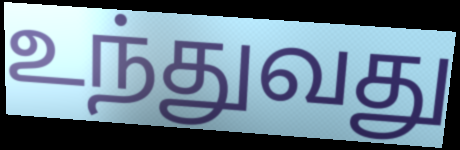
உந்துவது